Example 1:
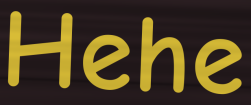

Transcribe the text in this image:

Hehe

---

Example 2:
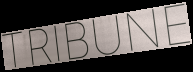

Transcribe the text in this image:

TRIBUNE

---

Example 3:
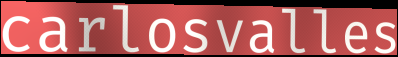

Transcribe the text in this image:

carlosvalles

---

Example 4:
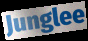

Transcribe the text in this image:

Junglee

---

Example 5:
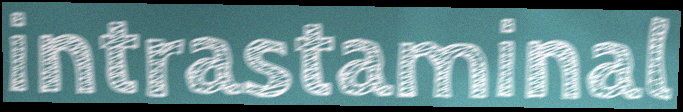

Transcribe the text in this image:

intrastaminal